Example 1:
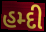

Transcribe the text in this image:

હમ્દી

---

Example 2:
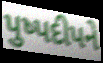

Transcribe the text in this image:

પુષ્પદીપને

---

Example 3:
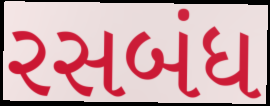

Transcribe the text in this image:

રસબંધ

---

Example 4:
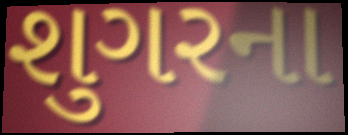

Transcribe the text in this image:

શુગરના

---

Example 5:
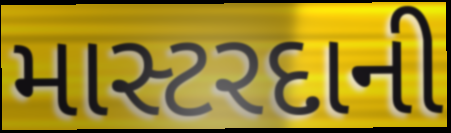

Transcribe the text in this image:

માસ્ટરદાની